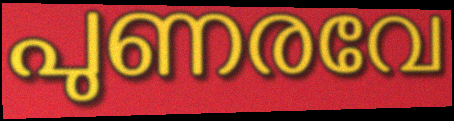
പുണരവേ